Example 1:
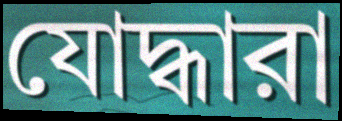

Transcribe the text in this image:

যোদ্ধারা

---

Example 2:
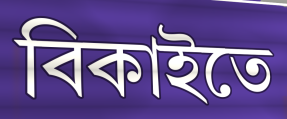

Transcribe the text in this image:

বিকাইতে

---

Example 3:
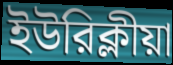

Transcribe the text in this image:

ইউরিক্লীয়া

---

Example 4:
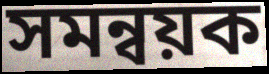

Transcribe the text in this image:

সমন্বয়ক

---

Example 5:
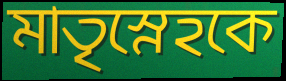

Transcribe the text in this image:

মাতৃস্নেহকে